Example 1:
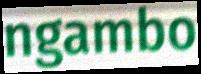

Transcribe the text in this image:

ngambo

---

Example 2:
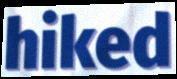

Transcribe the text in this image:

hiked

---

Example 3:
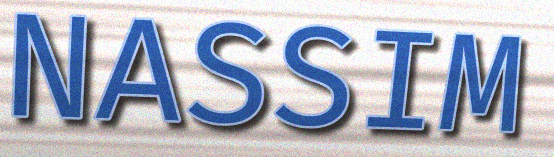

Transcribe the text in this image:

NASSIM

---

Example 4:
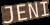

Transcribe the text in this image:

JENI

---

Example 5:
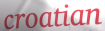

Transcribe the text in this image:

croatian